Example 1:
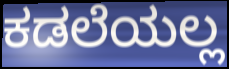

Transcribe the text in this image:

ಕಡಲೆಯಲ್ಲ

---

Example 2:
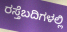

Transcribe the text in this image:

ರಸ್ತೆಬದಿಗಳಲ್ಲಿ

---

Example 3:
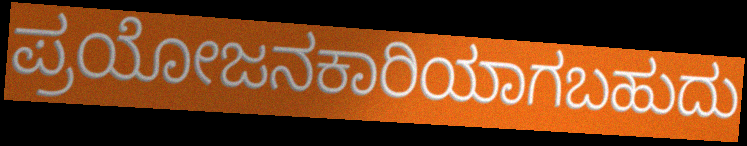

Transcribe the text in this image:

ಪ್ರಯೋಜನಕಾರಿಯಾಗಬಹುದು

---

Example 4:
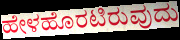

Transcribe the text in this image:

ಹೇಳಹೊರಟಿರುವುದು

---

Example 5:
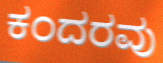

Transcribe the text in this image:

ಕಂದರವು